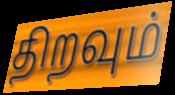
திறவும்